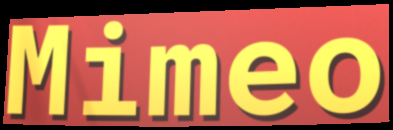
Mimeo